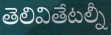
తెలివితేటల్నీ